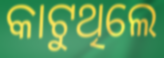
କାଟୁଥିଲେ